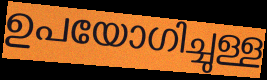
ഉപയോഗിച്ചുള്ള